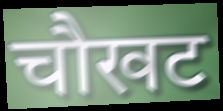
चौखट